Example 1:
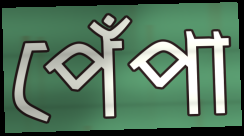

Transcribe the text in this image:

পেঁপা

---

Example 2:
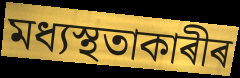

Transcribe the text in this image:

মধ্যস্থতাকাৰীৰ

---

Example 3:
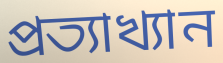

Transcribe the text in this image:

প্ৰত্যাখ্যান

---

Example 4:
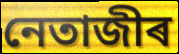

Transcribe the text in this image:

নেতাজীৰ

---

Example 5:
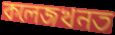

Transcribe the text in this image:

কলেজখনত